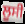
ਲੂਸੀ